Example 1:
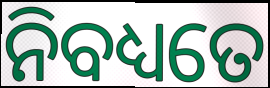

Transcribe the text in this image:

ନିବଧ୍ୟତେ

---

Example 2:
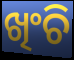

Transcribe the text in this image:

ଖିଂଚି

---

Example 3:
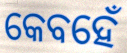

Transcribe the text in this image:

କେବହେଁ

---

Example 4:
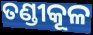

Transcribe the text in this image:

ତଣ୍ଡୀକୂଳ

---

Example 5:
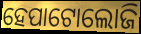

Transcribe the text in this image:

ହେପାଟୋଲୋଜି